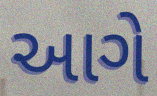
આગે